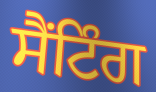
ਸੈਂਟਿੰਗ